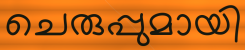
ചെരുപ്പുമായി